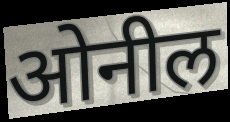
ओनील